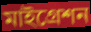
মাইগ্রেশন